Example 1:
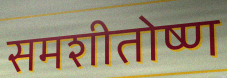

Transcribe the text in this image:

समशीतोष्ण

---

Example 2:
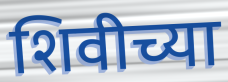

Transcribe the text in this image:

शिवीच्या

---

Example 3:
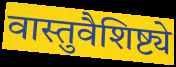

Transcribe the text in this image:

वास्तुवैशिष्ट्ये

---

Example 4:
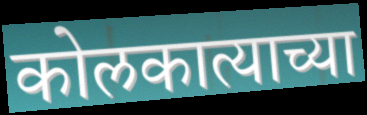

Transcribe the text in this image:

कोलकात्याच्या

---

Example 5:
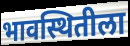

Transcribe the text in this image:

भावस्थितीला